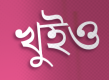
খুইও